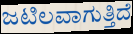
ಜಟಿಲವಾಗುತ್ತಿದೆ